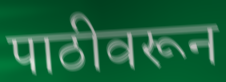
पाठीवरून